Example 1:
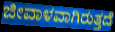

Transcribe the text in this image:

ಜೀವಾಳವಾಗಿರುತ್ತದೆ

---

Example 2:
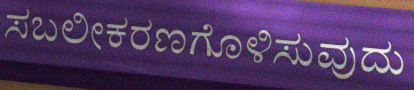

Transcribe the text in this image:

ಸಬಲೀಕರಣಗೊಳಿಸುವುದು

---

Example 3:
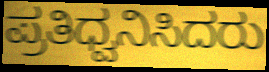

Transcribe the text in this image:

ಪ್ರತಿಧ್ವನಿಸಿದರು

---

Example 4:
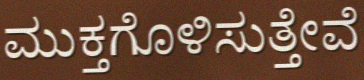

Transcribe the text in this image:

ಮುಕ್ತಗೊಳಿಸುತ್ತೇವೆ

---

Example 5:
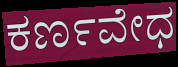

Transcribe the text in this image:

ಕರ್ಣವೇಧ